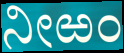
ನೀಱಂ